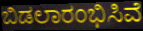
ಬಿಡಲಾರಂಭಿಸಿವೆ